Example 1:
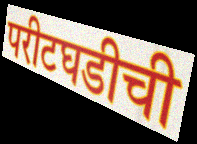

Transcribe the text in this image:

परीटघडीची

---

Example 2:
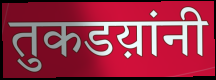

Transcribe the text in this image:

तुकडय़ांनी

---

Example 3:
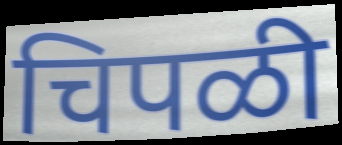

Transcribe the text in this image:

चिपळी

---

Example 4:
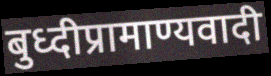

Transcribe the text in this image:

बुध्दीप्रामाण्यवादी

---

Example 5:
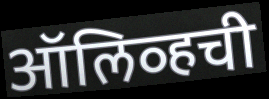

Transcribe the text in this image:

ऑलिव्हची